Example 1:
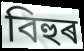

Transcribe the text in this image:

বিহুৰ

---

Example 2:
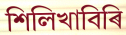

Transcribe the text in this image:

শিলিখাবিৰি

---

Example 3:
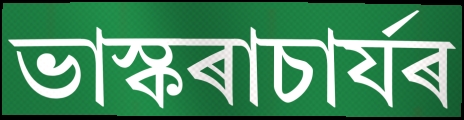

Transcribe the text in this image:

ভাস্কৰাচাৰ্যৰ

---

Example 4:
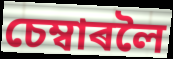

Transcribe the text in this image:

চেম্বাৰলৈ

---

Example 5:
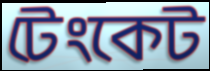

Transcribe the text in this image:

টেংকেট